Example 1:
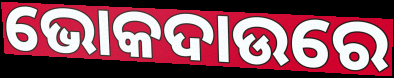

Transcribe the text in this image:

ଭୋକଦାଉରେ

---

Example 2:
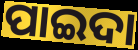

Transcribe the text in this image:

ପାଇଦା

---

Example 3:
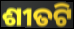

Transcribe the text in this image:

ଶୀତଟି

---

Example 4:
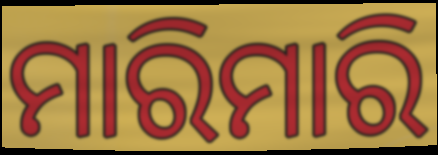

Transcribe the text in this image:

ମାରିମାରି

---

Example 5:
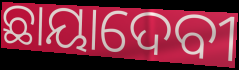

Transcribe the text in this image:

ଛାୟାଦେବୀ